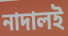
নাদালই